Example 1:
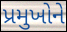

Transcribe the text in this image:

પ્રમુખોને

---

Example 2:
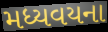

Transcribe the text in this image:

મધ્યવયના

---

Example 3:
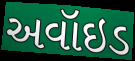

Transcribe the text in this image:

અવૉઇડ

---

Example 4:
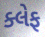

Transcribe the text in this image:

ક્લેફ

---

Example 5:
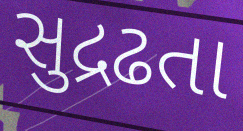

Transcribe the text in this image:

સુદ્રઢતા